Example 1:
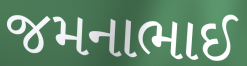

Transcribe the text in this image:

જમનાભાઈ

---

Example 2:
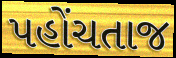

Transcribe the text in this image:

પહોંચતાજ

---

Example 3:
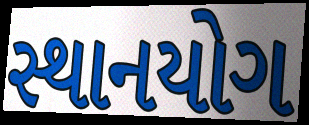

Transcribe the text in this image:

સ્થાનયોગ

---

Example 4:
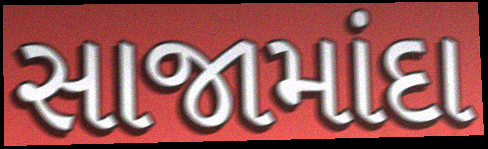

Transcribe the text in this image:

સાજામાંદા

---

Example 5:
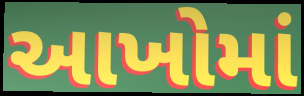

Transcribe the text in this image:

આખોમાં